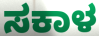
ಸಕಾಳ